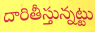
దారితీస్తున్నట్టు